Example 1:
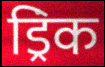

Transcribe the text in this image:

ड्रिंक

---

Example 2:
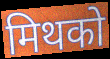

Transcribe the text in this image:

मिथको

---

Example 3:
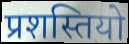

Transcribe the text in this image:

प्रशस्तियो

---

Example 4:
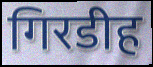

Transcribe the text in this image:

गिरडीह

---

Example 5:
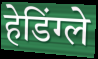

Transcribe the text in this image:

हेडिंग्‍ले